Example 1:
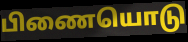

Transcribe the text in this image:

பிணையொடு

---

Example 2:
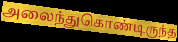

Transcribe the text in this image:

அலைந்துகொண்டிருந்த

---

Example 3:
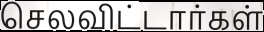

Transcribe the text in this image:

செலவிட்டார்கள்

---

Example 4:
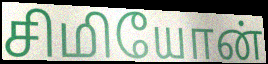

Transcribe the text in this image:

சிமியோன்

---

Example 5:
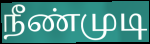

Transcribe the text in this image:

நீண்முடி